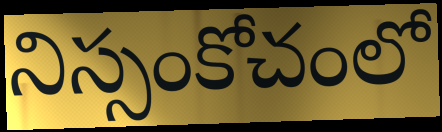
నిస్సంకోచంలో